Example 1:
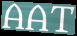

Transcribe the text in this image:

AAT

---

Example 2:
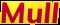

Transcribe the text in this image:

Mull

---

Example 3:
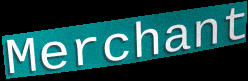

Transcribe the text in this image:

Merchant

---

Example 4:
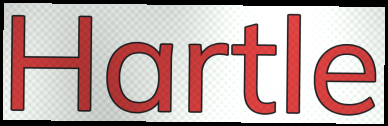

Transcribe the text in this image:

Hartle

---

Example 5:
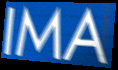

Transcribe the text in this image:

IMA